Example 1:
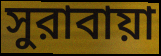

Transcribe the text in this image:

সুরাবায়া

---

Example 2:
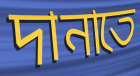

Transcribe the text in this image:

দানাতে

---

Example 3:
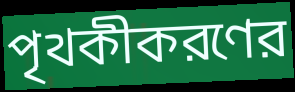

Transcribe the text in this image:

পৃথকীকরণের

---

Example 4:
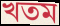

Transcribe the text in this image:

খতম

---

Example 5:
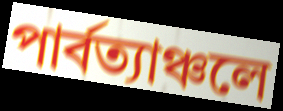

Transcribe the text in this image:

পার্বত্যাঞ্চলে